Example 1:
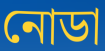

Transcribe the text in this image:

নোডা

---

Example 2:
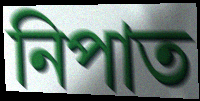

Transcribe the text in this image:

নিপাত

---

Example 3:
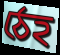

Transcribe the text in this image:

ঠেহ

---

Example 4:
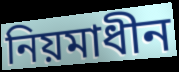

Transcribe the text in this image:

নিয়মাধীন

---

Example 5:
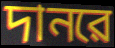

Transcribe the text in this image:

দানৱে